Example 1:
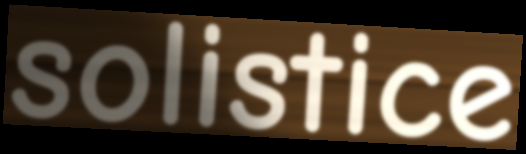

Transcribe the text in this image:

solistice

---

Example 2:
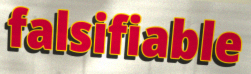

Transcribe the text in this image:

falsifiable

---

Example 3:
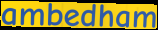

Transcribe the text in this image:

ambedham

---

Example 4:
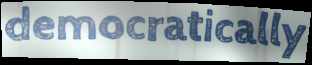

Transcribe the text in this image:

democratically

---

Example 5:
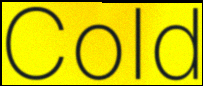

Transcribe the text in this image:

Cold